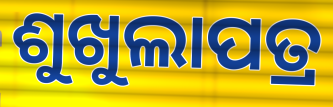
ଶୁଖୁଲାପତ୍ର